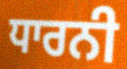
ਧਾਰਨੀ